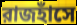
রাজহাঁসে